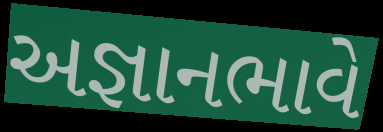
અજ્ઞાનભાવે